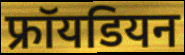
फ्रॉयडियन